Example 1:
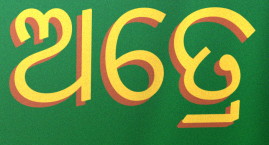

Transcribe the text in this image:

ଅତ୍ରେ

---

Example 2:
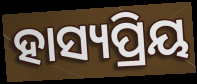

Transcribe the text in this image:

ହାସ୍ୟପ୍ରିୟ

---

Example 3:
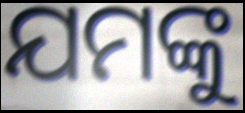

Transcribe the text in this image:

ଯମଙ୍କୁ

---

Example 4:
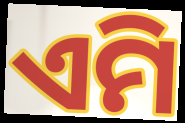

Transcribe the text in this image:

ଏମି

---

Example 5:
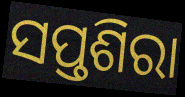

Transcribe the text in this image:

ସପ୍ତଶିରା